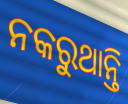
ନକରୁଥାନ୍ତି